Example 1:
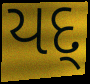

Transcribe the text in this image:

યદ્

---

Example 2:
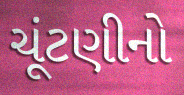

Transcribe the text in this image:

ચૂંટણીનો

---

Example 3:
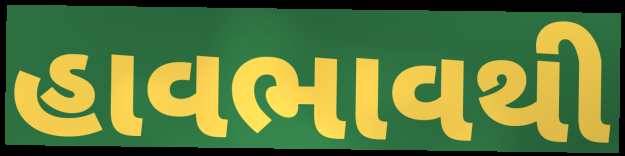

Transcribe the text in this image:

હાવભાવથી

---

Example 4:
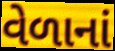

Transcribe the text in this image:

વેળાનાં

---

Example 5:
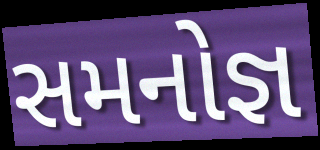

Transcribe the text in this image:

સમનોજ્ઞ